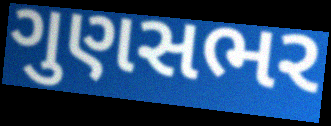
ગુણસભર